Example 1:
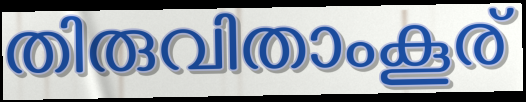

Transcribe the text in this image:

തിരുവിതാംകൂര്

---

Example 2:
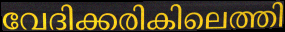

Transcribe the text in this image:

വേദിക്കരികിലെത്തി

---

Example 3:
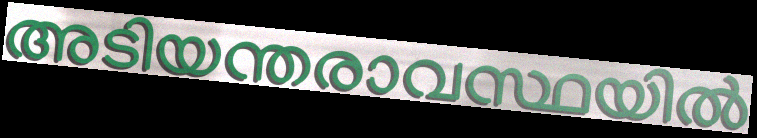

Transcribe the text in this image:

അടിയന്തരാവസ്ഥയിൽ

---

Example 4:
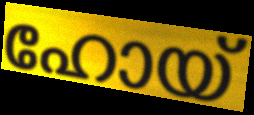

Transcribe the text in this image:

ഹോയ്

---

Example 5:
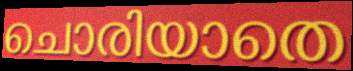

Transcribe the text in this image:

ചൊരിയാതെ